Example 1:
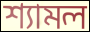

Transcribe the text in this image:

শ্যামল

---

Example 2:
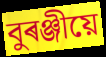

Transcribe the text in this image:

বুৰঞ্জীয়ে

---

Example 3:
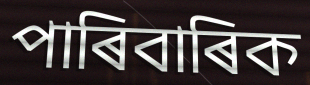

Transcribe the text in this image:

পাৰিবাৰিক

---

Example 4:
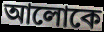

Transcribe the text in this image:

আলোকে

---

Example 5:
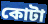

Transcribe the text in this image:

কোটা